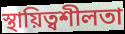
স্থায়িত্বশীলতা